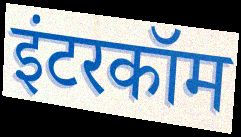
इंटरकॉम